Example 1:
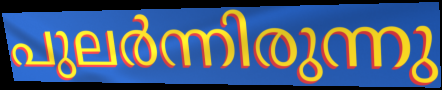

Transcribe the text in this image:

പുലർന്നിരുന്നു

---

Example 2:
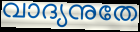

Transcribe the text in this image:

വാദ്യനുതേ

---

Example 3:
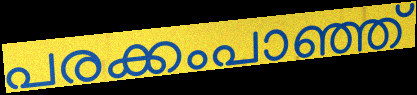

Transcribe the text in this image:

പരക്കംപാഞ്ഞ്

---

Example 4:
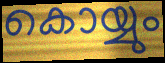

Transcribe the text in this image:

കൊയ്യും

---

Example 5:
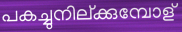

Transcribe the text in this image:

പകച്ചുനില്ക്കുമ്പോള്